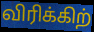
விரிக்கிற்